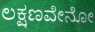
ಲಕ್ಷಣವೇನೋ